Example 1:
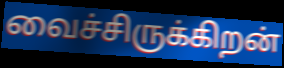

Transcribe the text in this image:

வைச்சிருக்கிறன்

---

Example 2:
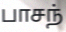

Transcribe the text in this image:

பாசந்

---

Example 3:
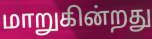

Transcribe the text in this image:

மாறுகின்றது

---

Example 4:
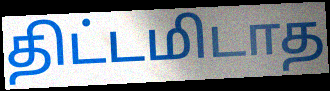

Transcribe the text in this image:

திட்டமிடாத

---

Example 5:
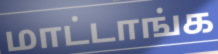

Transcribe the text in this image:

மாட்டாங்க